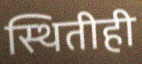
स्थितीही